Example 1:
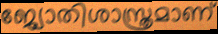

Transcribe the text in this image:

ജ്യോതിശാസ്ത്രമാണ്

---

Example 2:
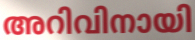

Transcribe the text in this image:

അറിവിനായി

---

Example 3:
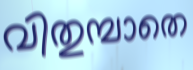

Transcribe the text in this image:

വിതുമ്പാതെ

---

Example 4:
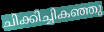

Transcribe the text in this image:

ചിക്കിച്ചികഞ്ഞു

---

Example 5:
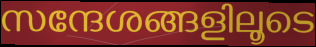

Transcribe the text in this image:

സന്ദേശങ്ങളിലൂടെ